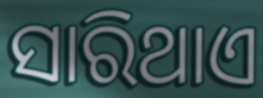
ସାରିଥାଏ